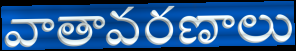
వాతావరణాలు